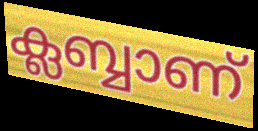
ക്ലബ്ബാണ്